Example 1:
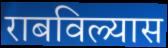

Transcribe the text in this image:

राबविल्यास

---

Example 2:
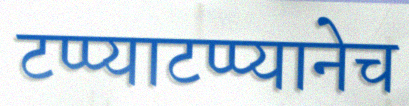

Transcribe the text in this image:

टप्प्याटप्प्यानेच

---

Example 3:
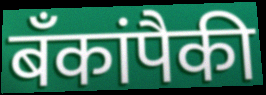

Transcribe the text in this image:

बँकांपैकी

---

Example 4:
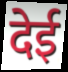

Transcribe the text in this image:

देई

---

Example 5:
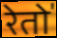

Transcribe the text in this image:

रेतो॑